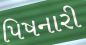
પિષનારી